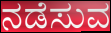
ನಡೆಸುವ